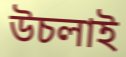
উচলাই